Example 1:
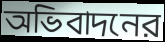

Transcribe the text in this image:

অভিবাদনের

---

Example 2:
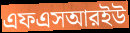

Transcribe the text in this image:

এফএসআরইউ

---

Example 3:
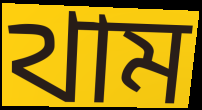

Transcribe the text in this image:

থাম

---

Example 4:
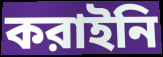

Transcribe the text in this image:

করাইনি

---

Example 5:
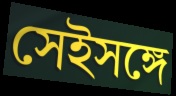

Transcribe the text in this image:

সেইসঙ্গে